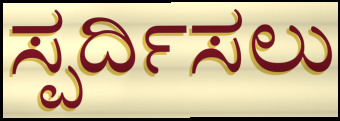
ಸ್ಪರ್ದಿಸಲು